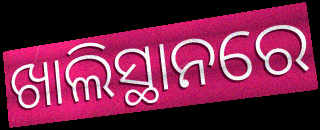
ଖାଲିସ୍ଥାନରେ